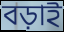
বড়াই